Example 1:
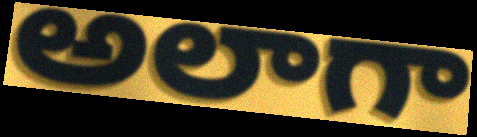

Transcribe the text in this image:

అలాగా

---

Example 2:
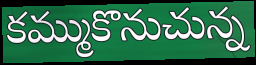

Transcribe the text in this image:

కమ్ముకొనుచున్న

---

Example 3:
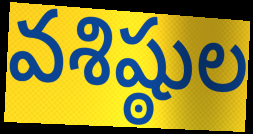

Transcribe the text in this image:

వశిష్ఠుల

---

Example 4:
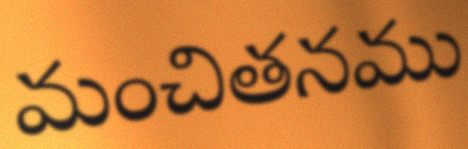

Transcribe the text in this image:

మంచితనము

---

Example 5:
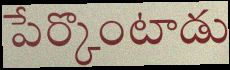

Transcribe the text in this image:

పేర్కొంటాడు